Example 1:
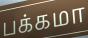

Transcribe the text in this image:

பக்கமா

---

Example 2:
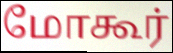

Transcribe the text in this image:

மோகூர்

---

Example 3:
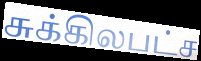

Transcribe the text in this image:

சுக்கிலபட்ச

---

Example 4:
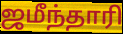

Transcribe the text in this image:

ஜமீந்தாரி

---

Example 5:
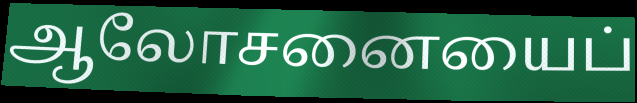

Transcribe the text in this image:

ஆலோசனையைப்